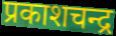
प्रकाशचन्द्र